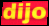
dijo